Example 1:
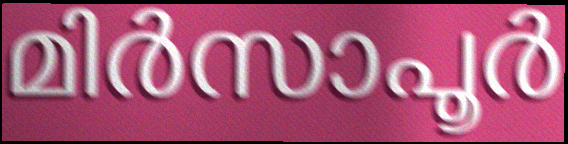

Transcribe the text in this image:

മിർസാപൂർ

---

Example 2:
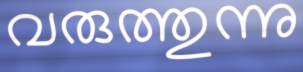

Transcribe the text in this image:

വരുത്തുന്നു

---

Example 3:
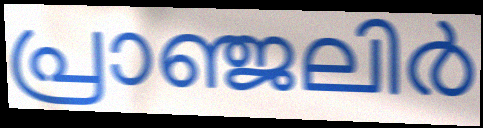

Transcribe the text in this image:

പ്രാഞ്ജലിർ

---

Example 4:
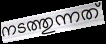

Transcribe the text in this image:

നടത്തുന്നത്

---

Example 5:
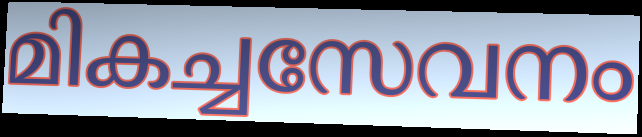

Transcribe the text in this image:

മികച്ചസേവനം